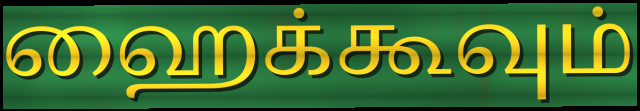
ஹைக்கூவும்